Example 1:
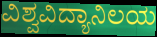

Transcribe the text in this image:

ವಿಶ್ವವಿದ್ಯಾನಿಲಯ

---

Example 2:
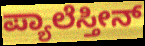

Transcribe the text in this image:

ಪ್ಯಾಲೆಸ್ತೀನ್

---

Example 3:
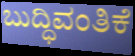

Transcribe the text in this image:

ಬುದ್ಧಿವಂತಿಕೆ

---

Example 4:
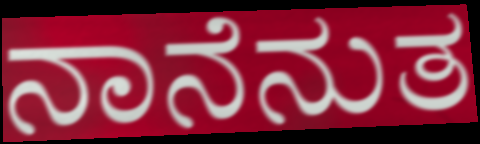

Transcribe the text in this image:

ನಾನೆನುತ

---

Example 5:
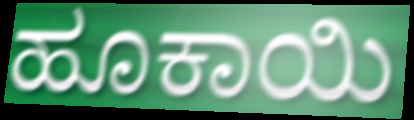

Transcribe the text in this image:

ಹೂಕಾಯಿ